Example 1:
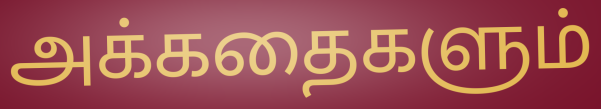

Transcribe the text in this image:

அக்கதைகளும்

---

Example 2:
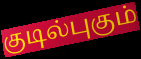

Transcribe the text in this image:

குடில்புகும்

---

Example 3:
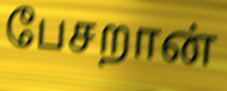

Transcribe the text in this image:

பேசறான்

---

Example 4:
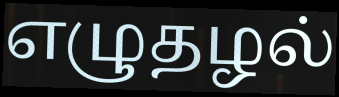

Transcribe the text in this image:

எழுதழல்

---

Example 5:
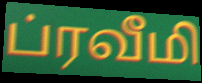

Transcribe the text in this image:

ப்ரவீமி